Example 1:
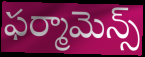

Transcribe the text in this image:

ఫర్మామెన్స్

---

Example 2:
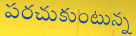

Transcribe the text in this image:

పరచుకుంటున్న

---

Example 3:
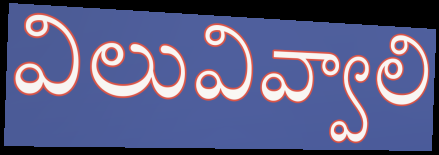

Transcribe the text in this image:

విలువివ్వాలి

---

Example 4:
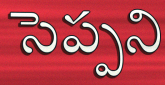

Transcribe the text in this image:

సెప్పని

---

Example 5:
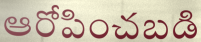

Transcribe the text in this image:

ఆరోపించబడి